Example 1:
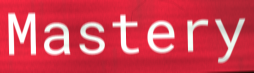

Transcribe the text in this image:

Mastery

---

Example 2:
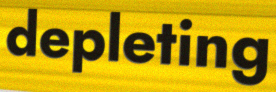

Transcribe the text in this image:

depleting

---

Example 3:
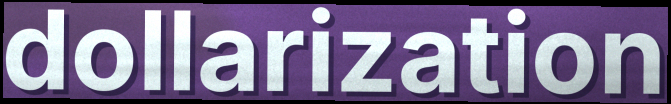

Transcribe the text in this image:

dollarization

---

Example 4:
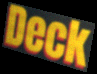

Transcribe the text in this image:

Deck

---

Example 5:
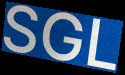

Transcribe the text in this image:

SGL